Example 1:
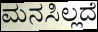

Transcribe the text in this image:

ಮನಸಿಲ್ಲದೆ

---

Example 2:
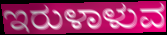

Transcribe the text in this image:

ಇರುಳಾಳುವ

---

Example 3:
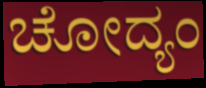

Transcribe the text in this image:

ಚೋದ್ಯಂ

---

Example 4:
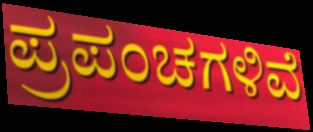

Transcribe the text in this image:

ಪ್ರಪಂಚಗಳಿವೆ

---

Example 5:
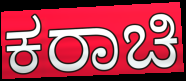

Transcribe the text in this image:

ಕರಾಚಿ